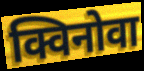
क्विनोवा